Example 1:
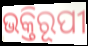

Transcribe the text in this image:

ଭକ୍ତିରୂପୀ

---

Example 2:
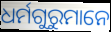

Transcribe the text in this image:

ଧର୍ମଗୁରୁମାନେ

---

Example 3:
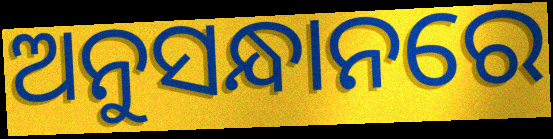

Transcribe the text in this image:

ଅନୁସନ୍ଧାନରେ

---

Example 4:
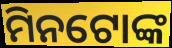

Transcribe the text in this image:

ମିନଟୋଙ୍କ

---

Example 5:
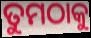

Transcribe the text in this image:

ତୁମଠାକୁ